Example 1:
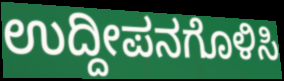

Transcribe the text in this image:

ಉದ್ದೀಪನಗೊಳಿಸಿ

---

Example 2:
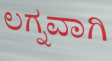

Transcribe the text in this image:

ಲಗ್ನವಾಗಿ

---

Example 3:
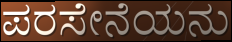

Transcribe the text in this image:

ಪರಸೇನೆಯನು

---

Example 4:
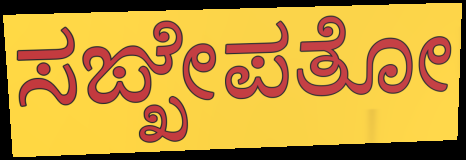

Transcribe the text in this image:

ಸಙ್ಖೇಪತೋ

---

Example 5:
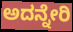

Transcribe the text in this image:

ಅದನ್ನೇರಿ